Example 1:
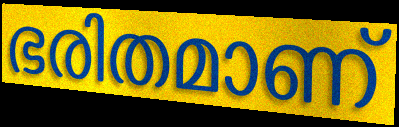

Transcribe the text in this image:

ഭരിതമാണ്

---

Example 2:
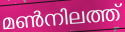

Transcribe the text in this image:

മൺനിലത്ത്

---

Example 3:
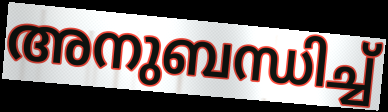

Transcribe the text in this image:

അനുബന്ധിച്ച്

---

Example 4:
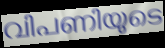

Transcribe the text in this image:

വിപണിയുടെ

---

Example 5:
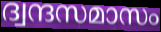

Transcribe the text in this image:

ദ്വന്ദസമാസം